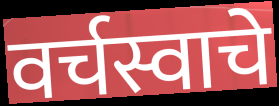
वर्चस्वाचे